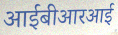
आईबीआरआई